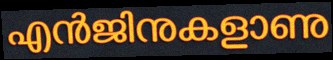
എൻജിനുകളാണു